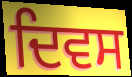
ਦਿਵਸ